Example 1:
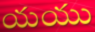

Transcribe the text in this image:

యయు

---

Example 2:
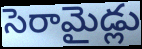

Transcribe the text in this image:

సెరామైడ్లు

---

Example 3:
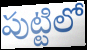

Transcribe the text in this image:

పుట్టిలో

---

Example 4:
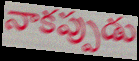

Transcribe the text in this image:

నాకప్పుడు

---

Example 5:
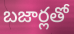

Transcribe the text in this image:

బజార్లతో